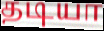
தடியா